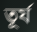
তূর্য